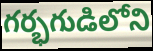
గర్భగుడిలోని